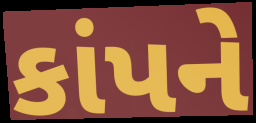
કાંપને